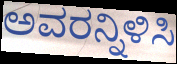
ಅವರನ್ನಿಳಿಸಿ